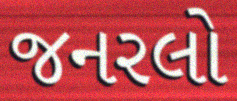
જનરલો